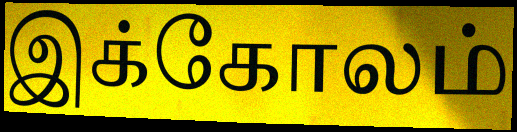
இக்கோலம்